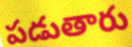
పడుతారు